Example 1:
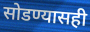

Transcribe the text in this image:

सोडण्यासही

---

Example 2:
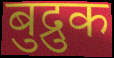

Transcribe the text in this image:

बुद्रुक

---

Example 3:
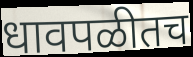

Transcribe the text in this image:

धावपळीतच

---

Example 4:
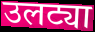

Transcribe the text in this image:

उलट्या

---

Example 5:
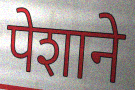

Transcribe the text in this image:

पेशाने